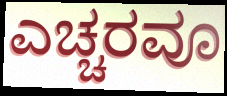
ಎಚ್ಚರವೂ